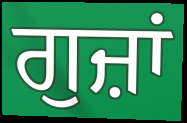
ਗੁਜ਼ਾਂ